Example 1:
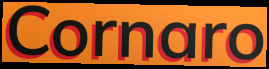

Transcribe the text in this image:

Cornaro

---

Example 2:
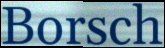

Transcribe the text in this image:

Borsch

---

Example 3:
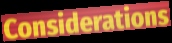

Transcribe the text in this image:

Considerations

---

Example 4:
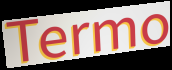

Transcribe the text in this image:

Termo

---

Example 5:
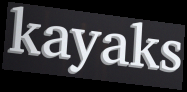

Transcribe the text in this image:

kayaks